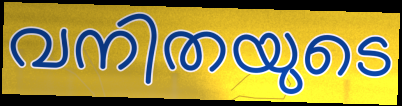
വനിതയുടെ